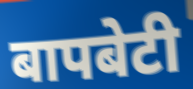
बापबेटी